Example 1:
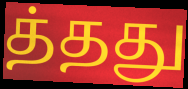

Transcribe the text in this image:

த்தது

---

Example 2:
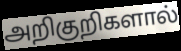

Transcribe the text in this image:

அறிகுறிகளால்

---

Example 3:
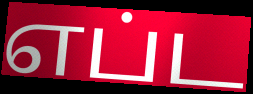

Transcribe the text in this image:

எப்ட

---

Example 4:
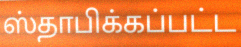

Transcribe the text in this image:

ஸ்தாபிக்கப்பட்ட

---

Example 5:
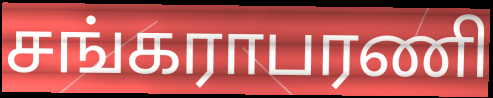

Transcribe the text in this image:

சங்கராபரணி